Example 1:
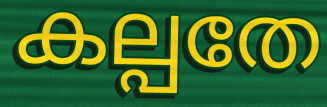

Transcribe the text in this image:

കല്പതേ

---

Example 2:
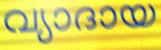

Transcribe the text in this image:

വ്യാദായ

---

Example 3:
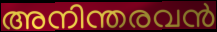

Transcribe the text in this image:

അനിന്തരവൻ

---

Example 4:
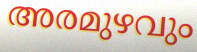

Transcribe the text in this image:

അരമുഴവും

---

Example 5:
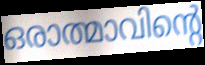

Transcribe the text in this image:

ഒരാത്മാവിന്റെ